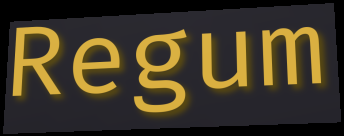
Regum